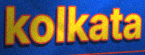
kolkata